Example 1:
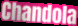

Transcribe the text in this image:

Chandola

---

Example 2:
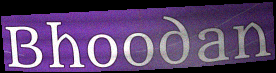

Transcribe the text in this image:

Bhoodan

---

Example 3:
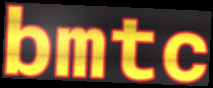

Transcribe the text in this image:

bmtc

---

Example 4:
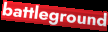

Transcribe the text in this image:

battleground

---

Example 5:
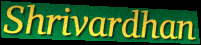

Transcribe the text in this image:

Shrivardhan